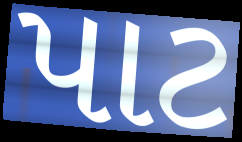
પાટ